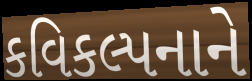
કવિકલ્પનાને